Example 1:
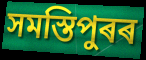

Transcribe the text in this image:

সমস্তিপুৰৰ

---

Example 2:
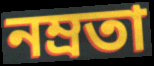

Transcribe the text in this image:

নম্ৰতা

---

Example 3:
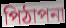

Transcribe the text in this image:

পিঠাপনা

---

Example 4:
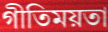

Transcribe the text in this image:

গীতিময়তা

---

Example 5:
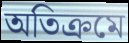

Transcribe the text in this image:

অতিক্ৰমে